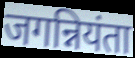
जगन्नियंता